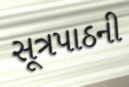
સૂત્રપાઠની